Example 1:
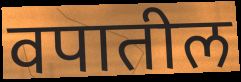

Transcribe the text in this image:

वपातील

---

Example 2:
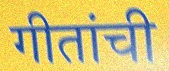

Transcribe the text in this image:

गीतांची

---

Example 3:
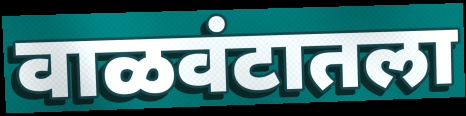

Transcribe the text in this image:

वाळवंटातला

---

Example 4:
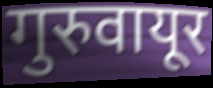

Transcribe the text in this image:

गुरुवायूर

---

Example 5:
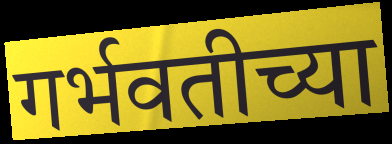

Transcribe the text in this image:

गर्भवतीच्या